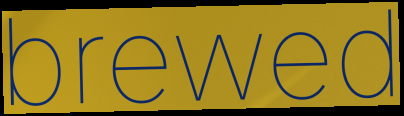
brewed